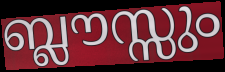
ബ്ലൗസ്സും